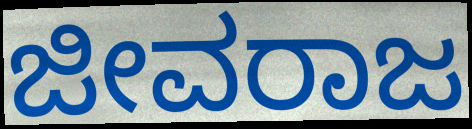
ಜೀವರಾಜ